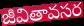
జీవితావసర